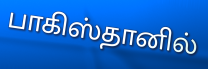
பாகிஸ்தானில்